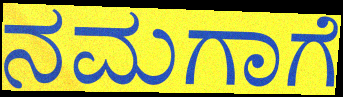
ನಮಗಾಗೆ